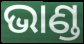
ଭାଣ୍ଡ